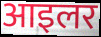
आइलर